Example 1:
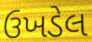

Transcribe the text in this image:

ઉખડેલ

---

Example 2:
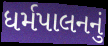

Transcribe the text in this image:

ધર્મપાલનનું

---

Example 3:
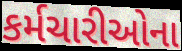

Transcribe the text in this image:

કર્મચારીઓના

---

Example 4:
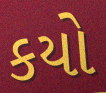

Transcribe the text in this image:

કયો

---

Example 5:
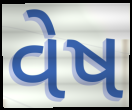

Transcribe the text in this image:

વેષ